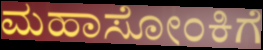
ಮಹಾಸೋಂಕಿಗೆ